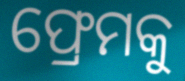
ଫ୍ରେମକୁ